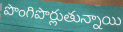
పొంగిపొర్లుతున్నాయి